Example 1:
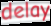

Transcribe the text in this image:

delay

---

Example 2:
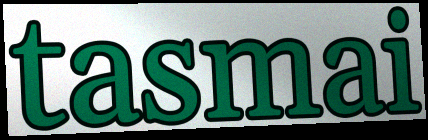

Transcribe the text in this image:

tasmai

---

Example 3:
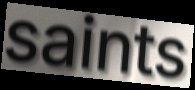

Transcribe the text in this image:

saints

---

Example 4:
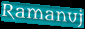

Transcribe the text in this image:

Ramanuj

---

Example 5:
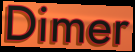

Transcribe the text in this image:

Dimer